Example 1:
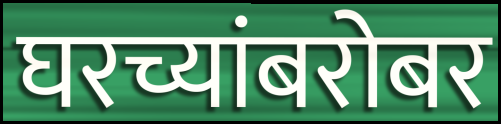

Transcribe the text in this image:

घरच्यांबरोबर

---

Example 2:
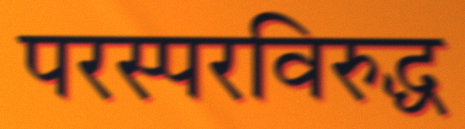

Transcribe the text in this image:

परस्परविरुद्ध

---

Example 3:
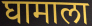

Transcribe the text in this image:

घामाला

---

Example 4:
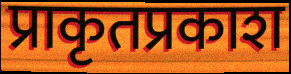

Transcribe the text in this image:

प्राकृतप्रकाश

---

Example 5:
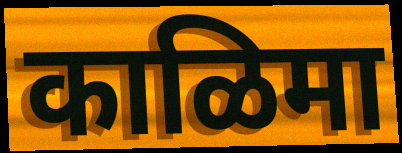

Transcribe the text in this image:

काळिमा